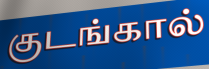
குடங்கால்